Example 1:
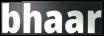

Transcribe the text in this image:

bhaar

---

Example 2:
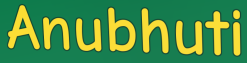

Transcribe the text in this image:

Anubhuti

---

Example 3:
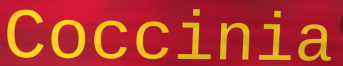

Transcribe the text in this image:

Coccinia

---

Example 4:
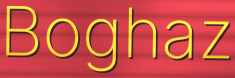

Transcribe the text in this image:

Boghaz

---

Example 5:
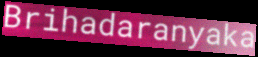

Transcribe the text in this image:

Brihadaranyaka